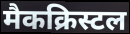
मैकक्रिस्टल